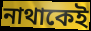
নাথাকেই